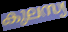
കുലസ്യ